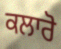
ਕਲਾਰੋ